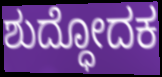
ಶುದ್ಧೋದಕ